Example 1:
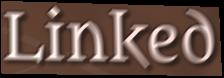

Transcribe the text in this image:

Linked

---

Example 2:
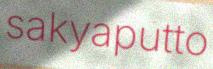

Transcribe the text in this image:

sakyaputto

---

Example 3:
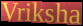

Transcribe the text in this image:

Vriksha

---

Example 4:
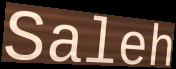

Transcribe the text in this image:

Saleh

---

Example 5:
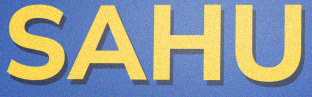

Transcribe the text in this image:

SAHU